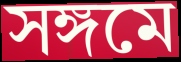
সঙ্গমে